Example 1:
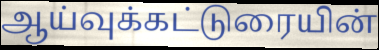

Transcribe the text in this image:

ஆய்வுக்கட்டுரையின்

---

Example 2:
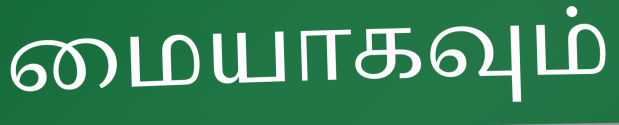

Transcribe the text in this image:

மையாகவும்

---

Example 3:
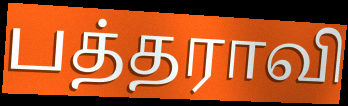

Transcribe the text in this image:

பத்தராவி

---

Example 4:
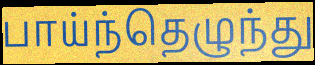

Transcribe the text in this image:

பாய்ந்தெழுந்து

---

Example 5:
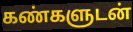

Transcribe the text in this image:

கண்களுடன்